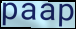
paap